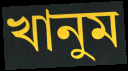
খানুম